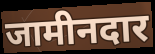
जामीनदार